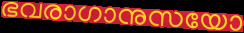
ഭവരാഗാനുസയോ